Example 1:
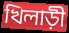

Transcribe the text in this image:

খিলাড়ী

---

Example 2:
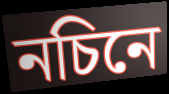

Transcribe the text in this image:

নচিনে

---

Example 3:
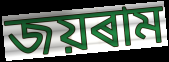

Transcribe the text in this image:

জয়ৰাম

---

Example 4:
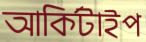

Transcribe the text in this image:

আৰ্কিটাইপ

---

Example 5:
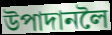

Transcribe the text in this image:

উপাদানলৈ